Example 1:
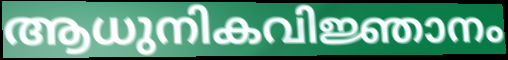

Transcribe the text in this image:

ആധുനികവിജ്ഞാനം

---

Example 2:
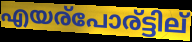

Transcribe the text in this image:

എയര്പോര്ട്ടില്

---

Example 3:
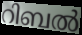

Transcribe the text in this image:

റിബൽ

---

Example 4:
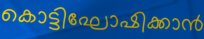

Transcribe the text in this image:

കൊട്ടിഘോഷിക്കാൻ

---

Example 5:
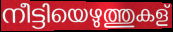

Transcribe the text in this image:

നീട്ടിയെഴുത്തുകള്